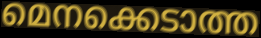
മെനക്കെടാത്ത